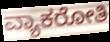
ವ್ಯಾಕರೋತಿ